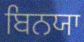
ਬਿਨਯਾ